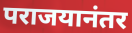
पराजयानंतर